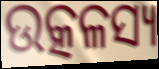
ଉତ୍କଳସ୍ୟ